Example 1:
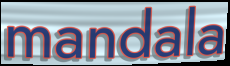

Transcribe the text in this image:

mandala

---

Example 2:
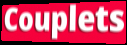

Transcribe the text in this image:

Couplets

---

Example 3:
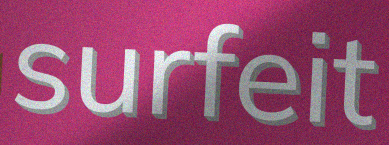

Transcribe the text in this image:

surfeit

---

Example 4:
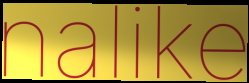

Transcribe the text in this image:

nalike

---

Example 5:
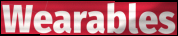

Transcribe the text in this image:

Wearables